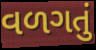
વળગતું